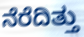
ನೆರೆದಿತ್ತು